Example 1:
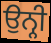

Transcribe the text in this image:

ਉਨ੍ਨੀ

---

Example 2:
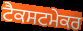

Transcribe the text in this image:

ਟੈਕਸਟਮੇਕਰ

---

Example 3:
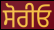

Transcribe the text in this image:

ਸੋਰੀਓ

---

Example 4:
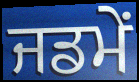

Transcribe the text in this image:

ਜਡਮੇਂ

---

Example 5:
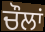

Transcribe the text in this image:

ਚੌਲਾਂ